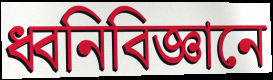
ধ্বনিবিজ্ঞানে